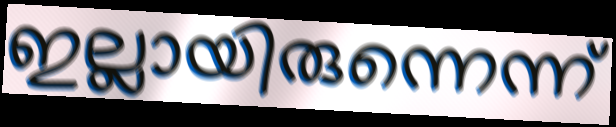
ഇല്ലായിരുന്നെന്ന്